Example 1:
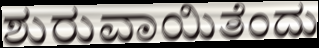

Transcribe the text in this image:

ಶುರುವಾಯಿತೆಂದು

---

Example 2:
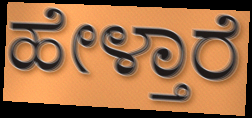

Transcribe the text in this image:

ಹೇಳ್ತಾರೆ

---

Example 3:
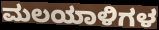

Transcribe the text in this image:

ಮಲಯಾಳಿಗಳ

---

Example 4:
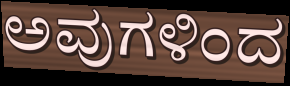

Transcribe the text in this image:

ಅವುಗಳಿಂದ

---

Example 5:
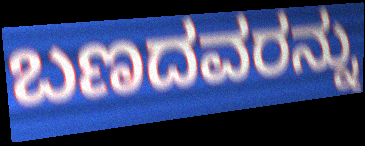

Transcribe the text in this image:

ಬಣದವರನ್ನು